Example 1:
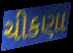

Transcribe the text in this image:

ચીકણા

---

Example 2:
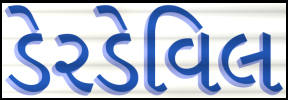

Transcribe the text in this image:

ડેરડેવિલ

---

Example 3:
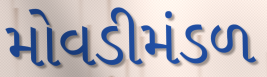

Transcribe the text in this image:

મોવડીમંડળ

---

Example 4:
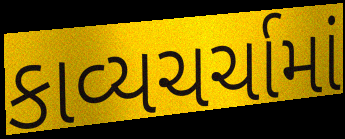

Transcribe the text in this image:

કાવ્યચર્ચામાં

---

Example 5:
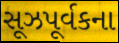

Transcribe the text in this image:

સૂઝપૂર્વકના